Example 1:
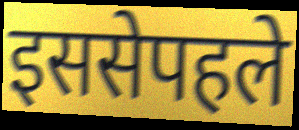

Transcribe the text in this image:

इससेपहले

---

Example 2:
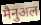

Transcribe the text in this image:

मैनुअल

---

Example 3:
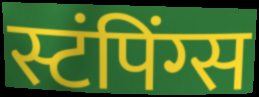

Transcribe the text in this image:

स्टंपिंग्स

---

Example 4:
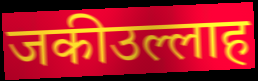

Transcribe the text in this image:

जकीउल्लाह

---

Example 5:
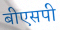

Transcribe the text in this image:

बीएसपी